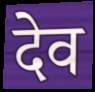
देव